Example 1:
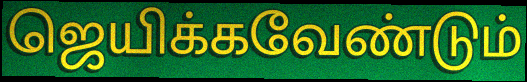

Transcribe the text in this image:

ஜெயிக்கவேண்டும்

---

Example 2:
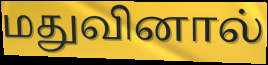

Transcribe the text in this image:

மதுவினால்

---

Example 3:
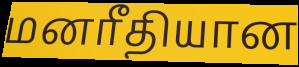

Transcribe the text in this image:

மனரீதியான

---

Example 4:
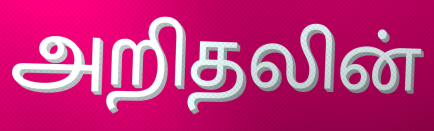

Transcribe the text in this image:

அறிதலின்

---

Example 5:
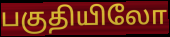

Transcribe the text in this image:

பகுதியிலோ